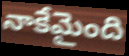
నాకేమైంది